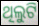
ଥିଲୁଟି